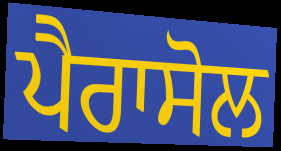
ਪੈਰਾਸੋਲ